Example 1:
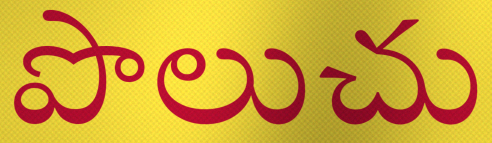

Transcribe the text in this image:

పొలుచు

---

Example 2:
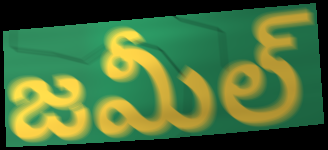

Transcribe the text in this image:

జమీల్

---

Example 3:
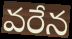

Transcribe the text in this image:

వరేన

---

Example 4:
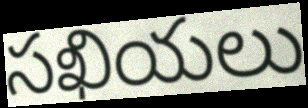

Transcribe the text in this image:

సఖియలు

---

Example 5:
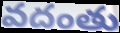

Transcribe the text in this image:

వదంతు